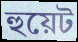
হুয়েট